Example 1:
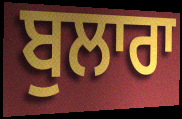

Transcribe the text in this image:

ਬੁਲਾਰਾ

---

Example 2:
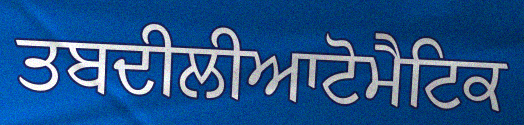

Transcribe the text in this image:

ਤਬਦੀਲੀਆਟੋਮੈਟਿਕ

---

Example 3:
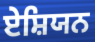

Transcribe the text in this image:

ਏਸ਼ਿਯਨ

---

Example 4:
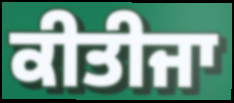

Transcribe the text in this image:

ਕੀਤੀਜਾ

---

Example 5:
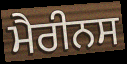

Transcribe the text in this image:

ਮੈਰੀਨਸ